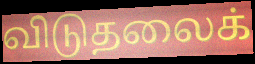
விடுதலைக்